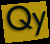
Qy